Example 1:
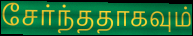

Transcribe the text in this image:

சேர்ந்ததாகவும்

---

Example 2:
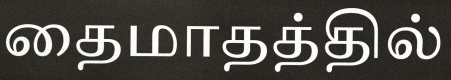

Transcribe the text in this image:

தைமாதத்தில்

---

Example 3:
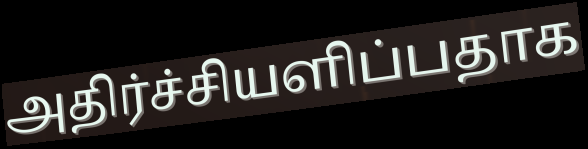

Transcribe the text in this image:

அதிர்ச்சியளிப்பதாக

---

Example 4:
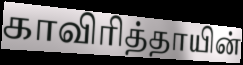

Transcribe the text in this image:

காவிரித்தாயின்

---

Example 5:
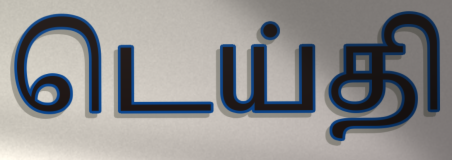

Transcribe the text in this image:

டெய்தி